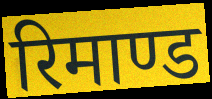
रिमाण्ड